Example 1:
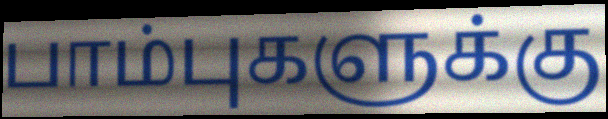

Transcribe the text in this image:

பாம்புகளுக்கு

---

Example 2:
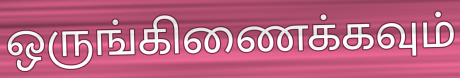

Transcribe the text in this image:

ஒருங்கிணைக்கவும்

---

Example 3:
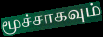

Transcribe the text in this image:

மூச்சாகவும்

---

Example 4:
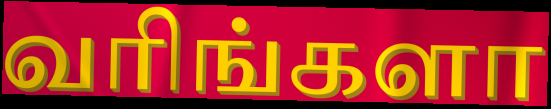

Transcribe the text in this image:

வரிங்களா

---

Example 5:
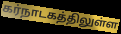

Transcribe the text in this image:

கர்நாடகத்திலுள்ள